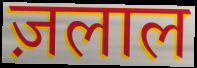
ज़लाल